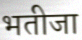
भतीजा